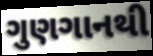
ગુણગાનથી